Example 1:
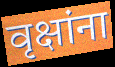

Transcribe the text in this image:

वृक्षांना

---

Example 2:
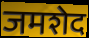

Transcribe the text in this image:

जमशेद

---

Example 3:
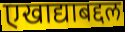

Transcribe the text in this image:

एखाद्याबद्दल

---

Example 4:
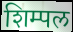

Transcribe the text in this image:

शिम्पल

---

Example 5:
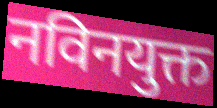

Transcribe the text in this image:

नविनयुक्त